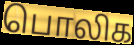
பொலிக